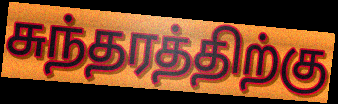
சுந்தரத்திற்கு